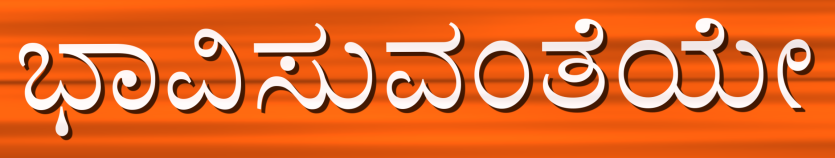
ಭಾವಿಸುವಂತೆಯೇ